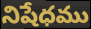
నిషేధము